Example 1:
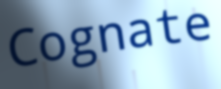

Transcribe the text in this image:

Cognate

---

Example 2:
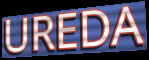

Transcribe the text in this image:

UREDA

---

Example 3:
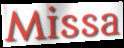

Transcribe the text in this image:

Missa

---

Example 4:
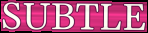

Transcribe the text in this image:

SUBTLE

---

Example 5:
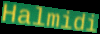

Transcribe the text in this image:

Halmidi